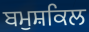
ਬਮੁਸ਼ਕਿਲ